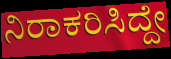
ನಿರಾಕರಿಸಿದ್ದೇ